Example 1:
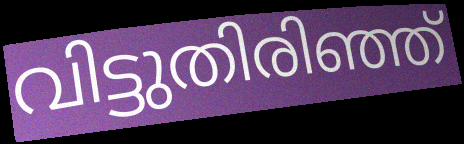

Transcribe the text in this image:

വിട്ടുതിരിഞ്ഞ്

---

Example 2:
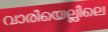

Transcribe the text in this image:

വാരിയെല്ലിലെ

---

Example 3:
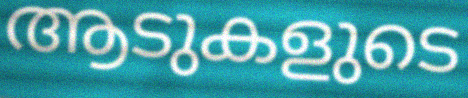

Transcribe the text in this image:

ആടുകളുടെ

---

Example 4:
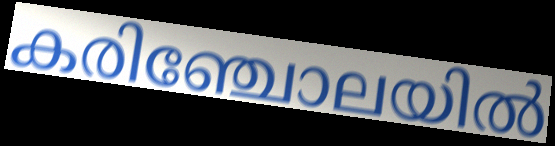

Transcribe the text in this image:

കരിഞ്ചോലയിൽ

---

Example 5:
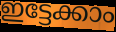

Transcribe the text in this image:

ഇട്ടേക്കാം